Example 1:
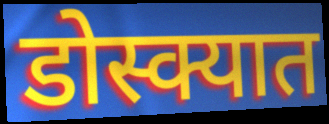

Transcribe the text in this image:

डोस्क्यात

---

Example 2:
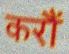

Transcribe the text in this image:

करौं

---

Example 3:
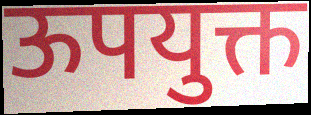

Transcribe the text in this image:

ऊपयुक्त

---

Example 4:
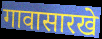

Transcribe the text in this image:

गावासारखे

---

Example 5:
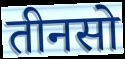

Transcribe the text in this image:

तीनसो